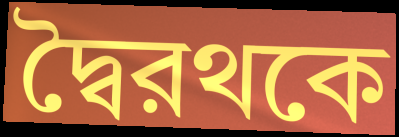
দ্বৈরথকে